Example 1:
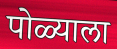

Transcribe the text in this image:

पोळ्याला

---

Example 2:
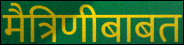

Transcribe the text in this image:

मैत्रिणीबाबत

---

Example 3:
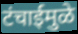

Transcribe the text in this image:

टंचाईमुळे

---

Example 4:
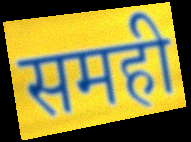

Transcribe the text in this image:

समही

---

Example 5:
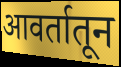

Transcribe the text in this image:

आवर्तातून